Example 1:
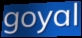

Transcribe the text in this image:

goyal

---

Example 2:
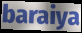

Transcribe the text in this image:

baraiya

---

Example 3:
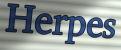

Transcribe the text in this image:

Herpes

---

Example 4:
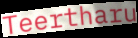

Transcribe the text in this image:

Teertharu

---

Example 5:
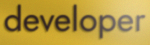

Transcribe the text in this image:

developer